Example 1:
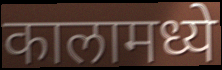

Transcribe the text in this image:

कालामध्ये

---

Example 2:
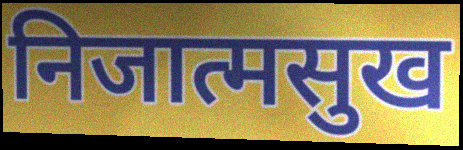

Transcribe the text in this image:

निजात्मसुख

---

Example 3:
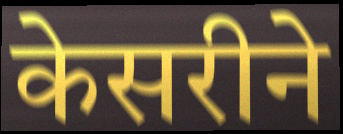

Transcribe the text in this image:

केसरीने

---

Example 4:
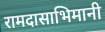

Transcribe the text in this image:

रामदासाभिमानी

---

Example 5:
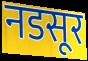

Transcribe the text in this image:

नडसूर